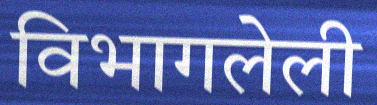
विभागलेली